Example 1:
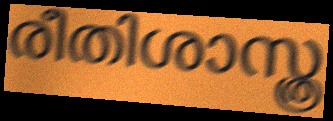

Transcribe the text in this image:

രീതിശാസ്ത്ര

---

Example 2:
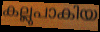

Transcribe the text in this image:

കല്ലുപാകിയ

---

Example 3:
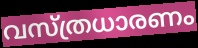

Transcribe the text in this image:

വസ്ത്രധാരണം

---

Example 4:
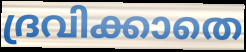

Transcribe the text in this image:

ദ്രവിക്കാതെ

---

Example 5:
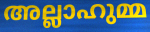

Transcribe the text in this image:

അല്ലാഹുമ്മ